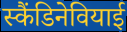
स्कैंडिनेवियाई